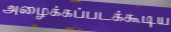
அழைக்கப்படக்கூடிய